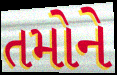
તમોને